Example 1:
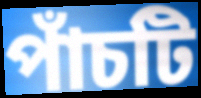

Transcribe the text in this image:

পাঁচটি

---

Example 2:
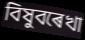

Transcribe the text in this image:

বিষুবৰেখা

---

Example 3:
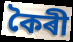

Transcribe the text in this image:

কৈৰী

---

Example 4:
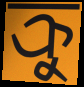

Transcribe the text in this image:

ক্ৰু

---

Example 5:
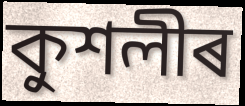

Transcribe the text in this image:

কুশলীৰ